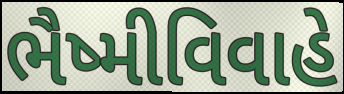
ભૈષ્મીવિવાહે